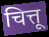
चित्तू